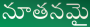
నూతనమై